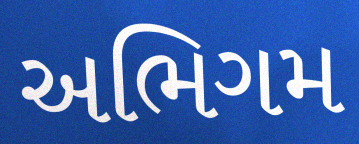
અભિગમ